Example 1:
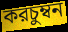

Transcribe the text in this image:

করচুম্বন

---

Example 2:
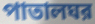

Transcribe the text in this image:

পাতালঘর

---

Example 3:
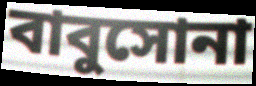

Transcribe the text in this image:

বাবুসোনা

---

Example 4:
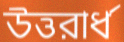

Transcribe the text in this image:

উত্তরার্ধ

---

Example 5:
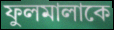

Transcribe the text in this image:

ফুলমালাকে